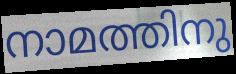
നാമത്തിനു